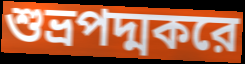
শুভ্রপদ্মকরে